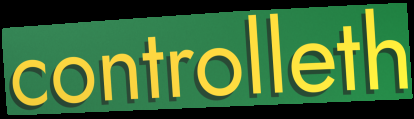
controlleth